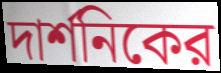
দার্শনিকের